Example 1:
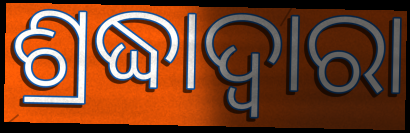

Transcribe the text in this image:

ଶ୍ରଦ୍ଧାଦ୍ୱାରା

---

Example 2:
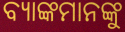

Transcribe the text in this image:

ବ୍ୟାଙ୍କମାନଙ୍କୁ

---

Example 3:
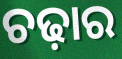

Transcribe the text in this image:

ଚଢ଼ାର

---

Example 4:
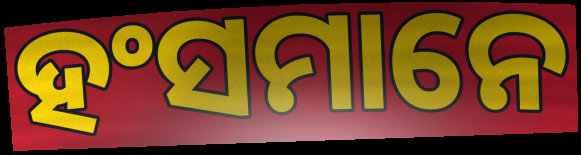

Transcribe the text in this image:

ହଂସମାନେ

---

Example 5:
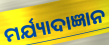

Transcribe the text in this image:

ମର୍ଯ୍ୟାଦାଜ୍ଞାନ